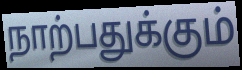
நாற்பதுக்கும்